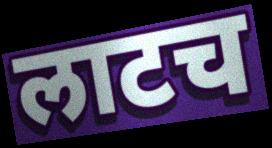
लाटच